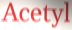
Acetyl